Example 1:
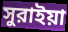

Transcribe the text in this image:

সুরাইয়া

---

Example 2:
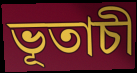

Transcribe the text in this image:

ভূতাচী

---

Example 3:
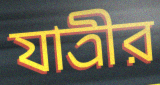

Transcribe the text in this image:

যাত্রীর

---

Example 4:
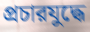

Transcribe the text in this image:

প্রচারযুদ্ধে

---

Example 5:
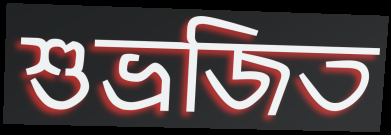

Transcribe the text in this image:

শুভ্রজিত